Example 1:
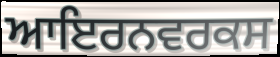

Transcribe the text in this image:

ਆਇਰਨਵਰਕਸ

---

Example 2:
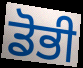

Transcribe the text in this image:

ਡੋਭੀ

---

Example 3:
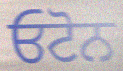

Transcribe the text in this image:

ਓਟੋਨ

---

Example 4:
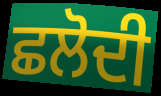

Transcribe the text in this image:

ਛਲੋਦੀ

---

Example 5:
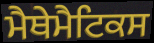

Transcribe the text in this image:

ਮੈਥੇਮੈਟਿਕਸ